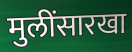
मुलींसारखा